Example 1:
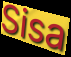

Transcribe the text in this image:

Sisa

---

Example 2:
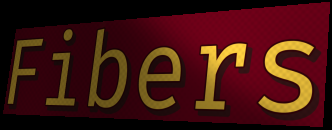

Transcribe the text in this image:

Fibers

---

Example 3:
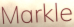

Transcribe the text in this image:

Markle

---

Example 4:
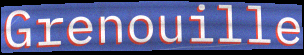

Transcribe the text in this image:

Grenouille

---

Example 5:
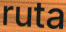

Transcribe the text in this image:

ruta